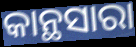
କାନ୍ଥସାରା